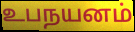
உபநயனம்